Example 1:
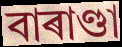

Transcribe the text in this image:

বাৰাণ্ডা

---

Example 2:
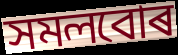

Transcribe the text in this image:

সমলবোৰ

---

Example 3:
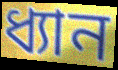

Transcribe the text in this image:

ধ্যান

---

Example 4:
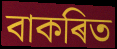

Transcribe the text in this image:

বাকৰিত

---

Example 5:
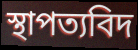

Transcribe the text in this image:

স্থাপত্যবিদ